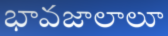
భావజాలాలూ